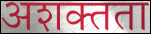
अशक्‍तता